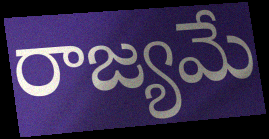
రాజ్యమే